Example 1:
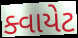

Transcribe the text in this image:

ક્વાયેટ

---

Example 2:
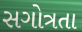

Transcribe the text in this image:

સગોત્રતા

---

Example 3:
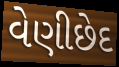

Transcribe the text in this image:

વેણીછેદ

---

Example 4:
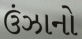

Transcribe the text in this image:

ઉંઝાનો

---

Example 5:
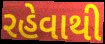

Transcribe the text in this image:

રહેવાથી